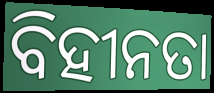
ବିହୀନତା